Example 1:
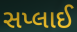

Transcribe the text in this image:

સપ્લાઈ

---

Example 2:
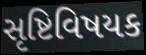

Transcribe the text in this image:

સૃષ્ટિવિષયક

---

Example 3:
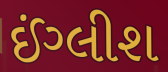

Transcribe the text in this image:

ઈંગ્લીશ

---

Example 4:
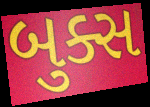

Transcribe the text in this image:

બુક્સ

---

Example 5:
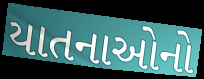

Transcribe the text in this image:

યાતનાઓનો